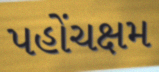
પહોંચક્ષમ